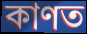
কাণত